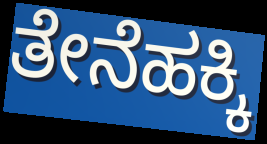
ತೇನೆಹಕ್ಕಿ